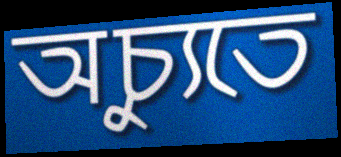
অচ্যুতে